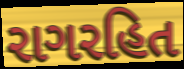
રાગરહિત